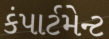
કંપાર્ટમેન્ટ